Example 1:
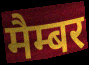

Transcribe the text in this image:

मैम्बर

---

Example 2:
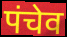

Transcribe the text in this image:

पंचेव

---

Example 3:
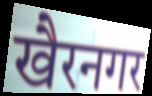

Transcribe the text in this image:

खैरनगर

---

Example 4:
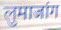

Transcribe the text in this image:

लुमाजांग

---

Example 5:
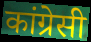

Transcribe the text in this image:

कांग्रेसी